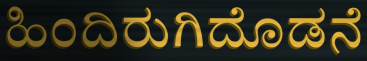
ಹಿಂದಿರುಗಿದೊಡನೆ